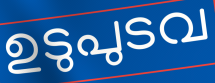
ഉടുപുടവ